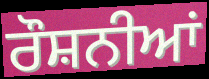
ਰੌਸ਼ਨੀਆਂ